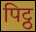
पिट्ठ